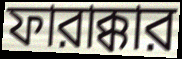
ফারাক্কার